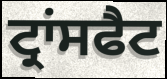
ਟ੍ਰਾਂਸਫੈਟ